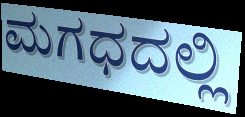
ಮಗಧದಲ್ಲಿ